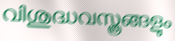
വിശുദ്ധവസ്ത്രങ്ങളും